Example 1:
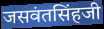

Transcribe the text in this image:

जसवंतसिंहजी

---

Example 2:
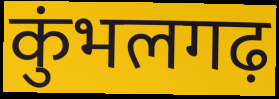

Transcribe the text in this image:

कुंभलगढ़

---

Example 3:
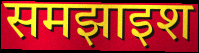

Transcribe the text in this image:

समझाइश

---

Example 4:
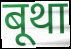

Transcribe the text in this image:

बूथा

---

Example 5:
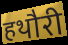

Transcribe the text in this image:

हथौरी